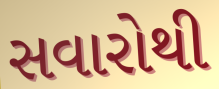
સવારોથી